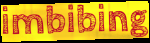
imbibing